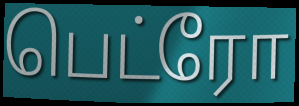
பெட்ரோ